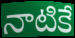
నాటికే